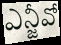
ఎన్జీవో